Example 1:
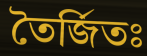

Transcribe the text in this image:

তৈর্জিতঃ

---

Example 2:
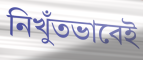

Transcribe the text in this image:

নিখুঁতভাবেই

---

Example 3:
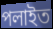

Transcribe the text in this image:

পলাইত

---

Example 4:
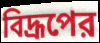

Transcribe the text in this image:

বিদ্রূপের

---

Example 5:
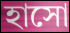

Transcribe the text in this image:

হাসো